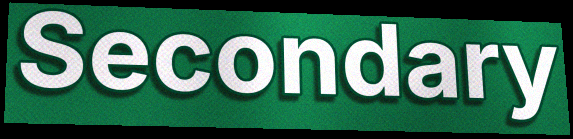
Secondary